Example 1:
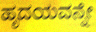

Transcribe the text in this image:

ಹೃದಯವನ್ನೇ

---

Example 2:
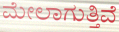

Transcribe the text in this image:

ಮೇಲಾಗುತ್ತಿವೆ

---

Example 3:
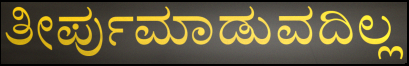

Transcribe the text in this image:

ತೀರ್ಪುಮಾಡುವದಿಲ್ಲ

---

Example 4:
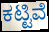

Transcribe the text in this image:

ಕಟ್ಟಿವೆ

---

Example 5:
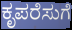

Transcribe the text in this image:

ಕೃಪರೆಸುಗೆ